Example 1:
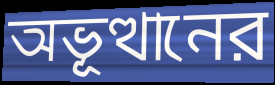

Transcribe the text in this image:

অভূত্থানের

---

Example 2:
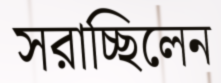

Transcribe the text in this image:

সরাচ্ছিলেন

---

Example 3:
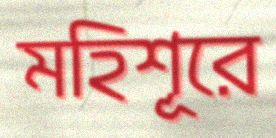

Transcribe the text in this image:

মহিশূরে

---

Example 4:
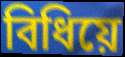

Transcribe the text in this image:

বিধিয়ে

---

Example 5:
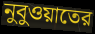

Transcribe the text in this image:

নুবুওয়াতের